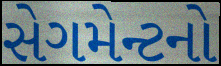
સેગમેન્ટનો